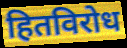
हितविरोध